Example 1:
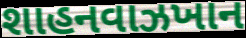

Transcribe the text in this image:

શાહનવાઝખાન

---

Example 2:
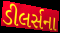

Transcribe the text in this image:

ડીલર્સના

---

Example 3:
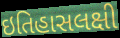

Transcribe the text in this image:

ઇતિહાસલક્ષી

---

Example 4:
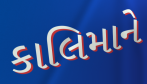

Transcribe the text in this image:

કાલિમાને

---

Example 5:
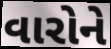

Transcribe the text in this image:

વારોને